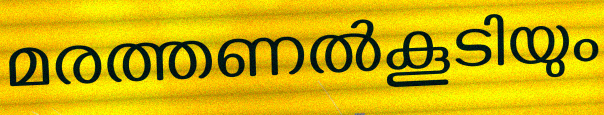
മരത്തണൽകൂടിയും